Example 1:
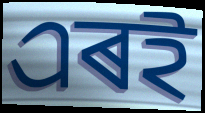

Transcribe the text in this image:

এৰই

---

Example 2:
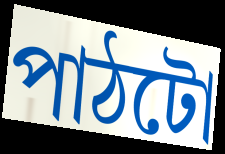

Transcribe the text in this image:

পাঠটো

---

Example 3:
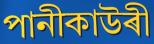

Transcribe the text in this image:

পানীকাউৰী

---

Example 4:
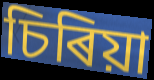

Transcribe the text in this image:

চিৰিয়া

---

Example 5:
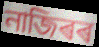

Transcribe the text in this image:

নাজিৰৰ